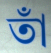
তাঁ